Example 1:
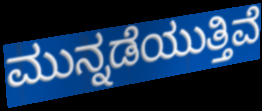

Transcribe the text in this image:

ಮುನ್ನಡೆಯುತ್ತಿವೆ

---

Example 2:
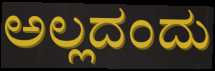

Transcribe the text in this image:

ಅಲ್ಲದಂದು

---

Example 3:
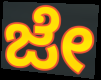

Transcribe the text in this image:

ಜೇ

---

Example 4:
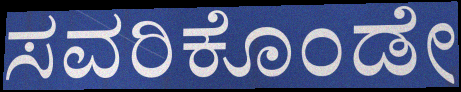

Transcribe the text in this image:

ಸವರಿಕೊಂಡೇ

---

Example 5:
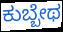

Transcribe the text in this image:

ಕುಬ್ಬೇಥ